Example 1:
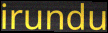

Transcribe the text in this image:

irundu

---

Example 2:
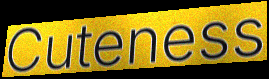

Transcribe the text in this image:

Cuteness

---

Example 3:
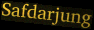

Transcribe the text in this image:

Safdarjung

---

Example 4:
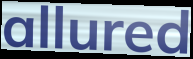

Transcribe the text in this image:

allured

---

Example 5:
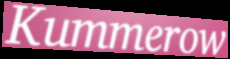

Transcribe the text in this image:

Kummerow